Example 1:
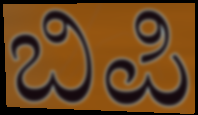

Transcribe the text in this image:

ಬಿಪಿ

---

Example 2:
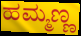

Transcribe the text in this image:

ಹಮ್ಮಣ್ಣ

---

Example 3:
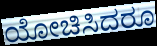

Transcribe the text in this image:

ಯೋಚಿಸಿದರೂ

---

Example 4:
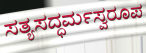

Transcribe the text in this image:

ಸತ್ಯಸದ್ಧರ್ಮಸ್ವರೂಪ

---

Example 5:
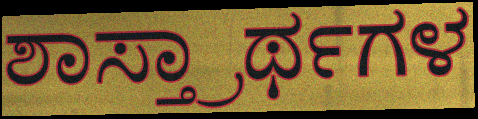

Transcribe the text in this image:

ಶಾಸ್ತ್ರಾರ್ಥಗಳ